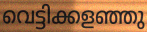
വെട്ടിക്കളഞ്ഞു